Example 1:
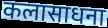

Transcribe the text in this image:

कलासाधना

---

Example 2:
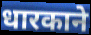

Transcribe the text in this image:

धारकाने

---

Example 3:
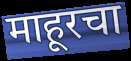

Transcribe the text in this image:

माहूरचा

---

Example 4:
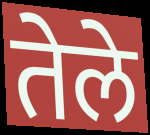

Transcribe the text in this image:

तेले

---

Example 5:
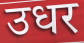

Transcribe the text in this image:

उधर